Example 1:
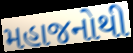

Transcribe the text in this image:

મહાજનોથી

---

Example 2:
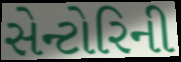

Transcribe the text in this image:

સેન્ટોરિની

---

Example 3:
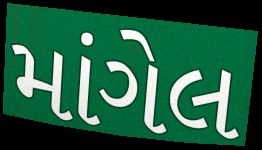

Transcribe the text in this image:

માંગેલ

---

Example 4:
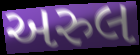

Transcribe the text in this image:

અરુલ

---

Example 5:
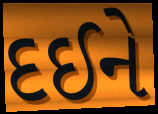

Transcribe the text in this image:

દઈને